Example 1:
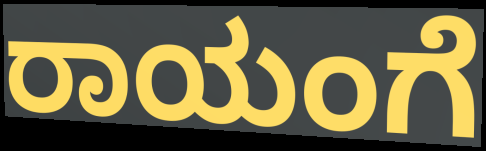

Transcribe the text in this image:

ರಾಯಂಗೆ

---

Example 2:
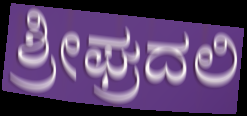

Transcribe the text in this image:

ಶ್ರೀಘ್ರದಲಿ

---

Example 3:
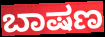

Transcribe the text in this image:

ಬಾಷಣ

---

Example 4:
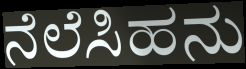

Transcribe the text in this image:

ನೆಲೆಸಿಹನು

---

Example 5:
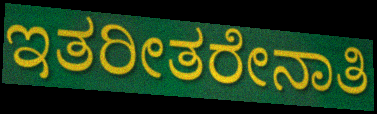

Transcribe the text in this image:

ಇತರೀತರೇನಾತಿ